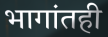
भागांतही